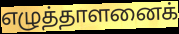
எழுத்தாளனைக்